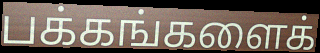
பக்கங்களைக்